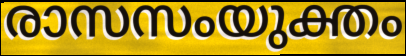
രാസസംയുക്തം